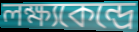
লক্ষ্যকেন্দ্রে